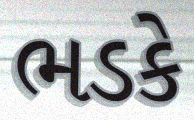
ભડકે